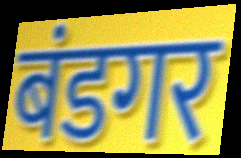
बंडगर